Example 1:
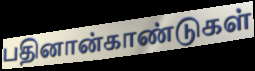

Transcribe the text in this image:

பதினான்காண்டுகள்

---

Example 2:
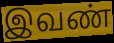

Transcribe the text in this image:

இவண்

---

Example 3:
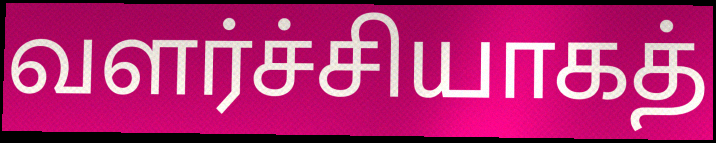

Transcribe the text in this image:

வளர்ச்சியாகத்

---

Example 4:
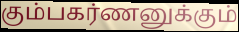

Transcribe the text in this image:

கும்பகர்ணனுக்கும்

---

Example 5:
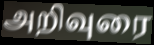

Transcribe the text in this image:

அறிவுரை